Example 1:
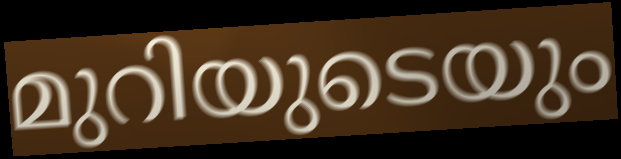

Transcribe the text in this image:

മുറിയുടെയും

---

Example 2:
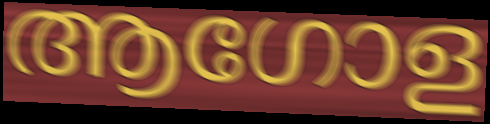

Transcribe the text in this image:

ആഗോള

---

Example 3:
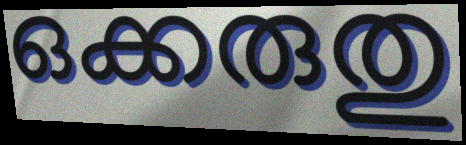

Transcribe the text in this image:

ഒക്കരുതു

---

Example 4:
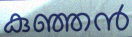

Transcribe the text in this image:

കുഞ്ഞൻ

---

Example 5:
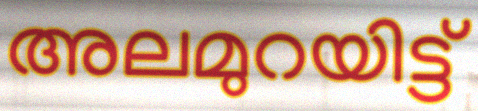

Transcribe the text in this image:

അലമുറയിട്ട്